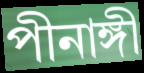
পীনাঙ্গী